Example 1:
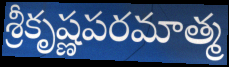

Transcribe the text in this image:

శ్రీకృష్ణపరమాత్మ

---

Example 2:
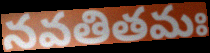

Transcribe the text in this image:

నవతితమః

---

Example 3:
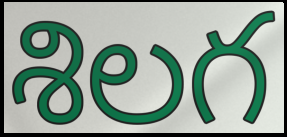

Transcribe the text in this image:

శిలగ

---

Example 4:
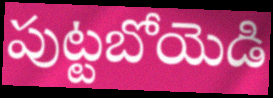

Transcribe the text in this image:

పుట్టబోయెడి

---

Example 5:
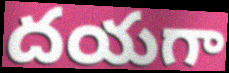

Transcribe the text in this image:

దయగా